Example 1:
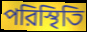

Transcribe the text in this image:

পরিস্থিতি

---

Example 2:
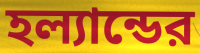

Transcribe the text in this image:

হল্যান্ডের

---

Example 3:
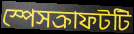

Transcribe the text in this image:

স্পেসক্রাফটটি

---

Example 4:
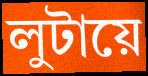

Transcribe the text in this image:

লুটায়ে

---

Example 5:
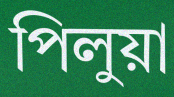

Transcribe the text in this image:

পিলুয়া